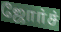
ஜோர்ச்